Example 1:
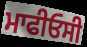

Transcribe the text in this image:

ਮਾਫੀਓਸੀ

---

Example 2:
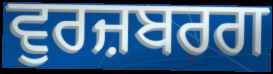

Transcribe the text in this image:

ਵੁਰਜ਼ਬਰਗ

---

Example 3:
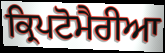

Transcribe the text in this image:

ਕ੍ਰਿਪਟੋਮੈਰੀਆ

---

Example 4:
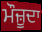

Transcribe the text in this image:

ਮੌਜ਼ੂਦਾ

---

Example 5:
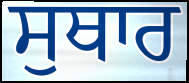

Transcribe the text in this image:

ਸੁਥਾਰ